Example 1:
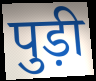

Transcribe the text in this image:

पुड़ी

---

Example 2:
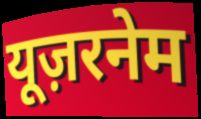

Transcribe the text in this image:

यूज़रनेम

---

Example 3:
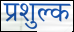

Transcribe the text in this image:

प्रशुल्क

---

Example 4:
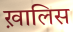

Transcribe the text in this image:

ख़ालिस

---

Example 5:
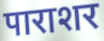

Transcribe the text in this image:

पाराशर